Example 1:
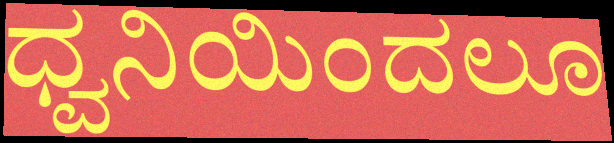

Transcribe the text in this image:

ಧ್ವನಿಯಿಂದಲೂ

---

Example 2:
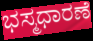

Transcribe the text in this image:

ಭಸ್ಮಧಾರಣೆ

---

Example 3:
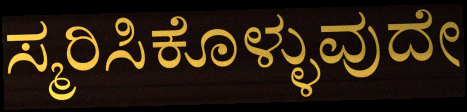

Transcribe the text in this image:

ಸ್ಮರಿಸಿಕೊಳ್ಳುವುದೇ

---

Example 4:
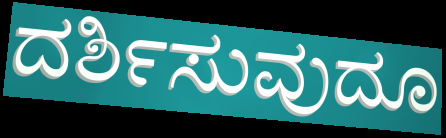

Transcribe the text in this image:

ದರ್ಶಿಸುವುದೂ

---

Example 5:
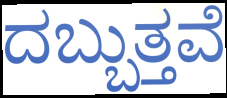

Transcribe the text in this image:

ದಬ್ಬುತ್ತವೆ